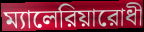
ম্যালেরিয়ারোধী